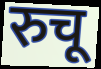
रुचू